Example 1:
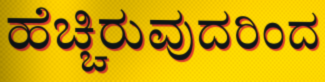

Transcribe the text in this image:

ಹೆಚ್ಚಿರುವುದರಿಂದ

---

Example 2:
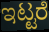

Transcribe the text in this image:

ಇಟ್ಟರೆ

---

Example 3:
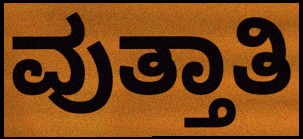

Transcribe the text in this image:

ವುತ್ತಾತಿ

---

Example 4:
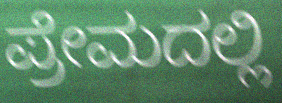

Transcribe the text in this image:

ಪ್ರೇಮದಲ್ಲಿ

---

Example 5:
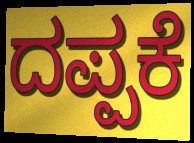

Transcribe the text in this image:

ದಪ್ಪಕೆ